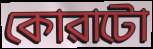
কোৱাটো